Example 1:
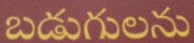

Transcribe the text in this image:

బడుగులను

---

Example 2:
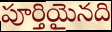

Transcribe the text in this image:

పూర్తియైనది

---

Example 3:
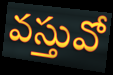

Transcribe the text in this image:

వస్తువో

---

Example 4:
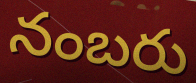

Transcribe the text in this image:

నంబరు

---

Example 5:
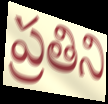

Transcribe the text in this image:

ప్రతిని